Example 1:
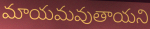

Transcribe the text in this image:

మాయమవుతాయని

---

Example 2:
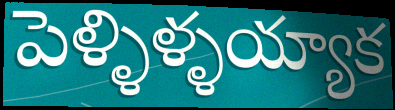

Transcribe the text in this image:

పెళ్ళిళ్ళయ్యాక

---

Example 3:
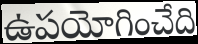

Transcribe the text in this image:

ఉపయోగించేది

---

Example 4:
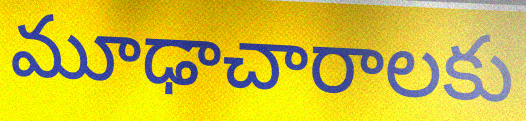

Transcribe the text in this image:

మూఢాచారాలకు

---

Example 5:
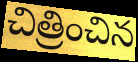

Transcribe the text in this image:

చిత్రించిన